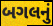
બગલનું